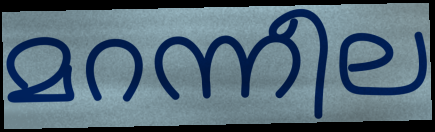
മറന്നീല